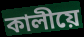
কালীয়ে